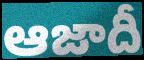
ఆజాదీ